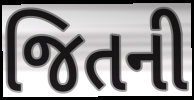
જિતની